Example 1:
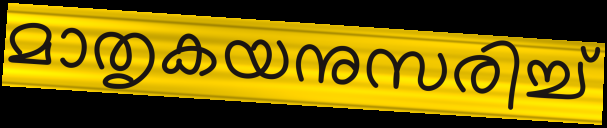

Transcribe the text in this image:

മാതൃകയനുസരിച്ച്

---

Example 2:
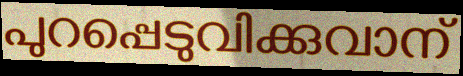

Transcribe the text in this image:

പുറപ്പെടുവിക്കുവാന്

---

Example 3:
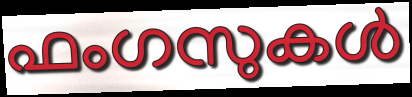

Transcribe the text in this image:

ഫംഗസുകൾ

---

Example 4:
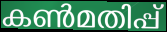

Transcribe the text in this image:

കൺമതിപ്പ്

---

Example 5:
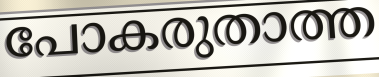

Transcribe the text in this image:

പോകരുതാത്ത